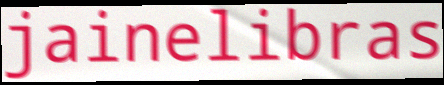
jainelibras